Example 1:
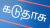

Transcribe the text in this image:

கடுதாசு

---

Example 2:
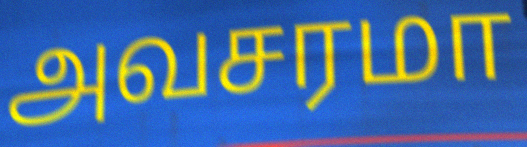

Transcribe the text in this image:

அவசரமா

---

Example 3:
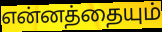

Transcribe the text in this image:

என்னத்தையும்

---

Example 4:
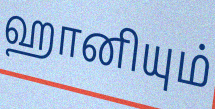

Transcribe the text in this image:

ஹானியும்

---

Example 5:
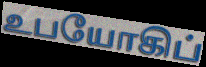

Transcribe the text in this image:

உபயோகிப்